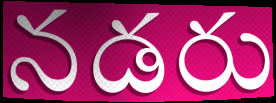
నడరు